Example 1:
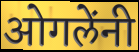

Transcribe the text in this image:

ओगलेंनी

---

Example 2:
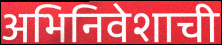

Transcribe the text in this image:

अभिनिवेशाची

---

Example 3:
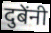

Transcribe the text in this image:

दुबेंनी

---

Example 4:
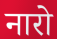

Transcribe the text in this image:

नारो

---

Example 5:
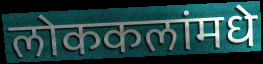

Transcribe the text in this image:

लोककलांमधे